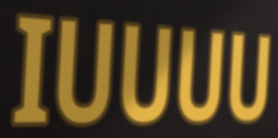
IUUUU